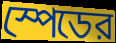
স্পেডের